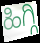
ಹಿಗ್ಗಿ